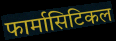
फार्मासिटिकल